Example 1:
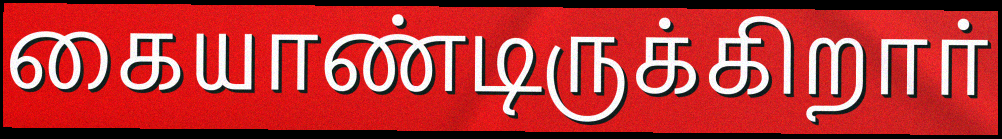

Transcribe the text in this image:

கையாண்டிருக்கிறார்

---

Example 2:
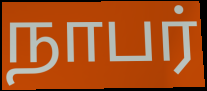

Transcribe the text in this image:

நாபர்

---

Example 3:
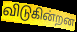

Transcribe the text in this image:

விடுகின்றன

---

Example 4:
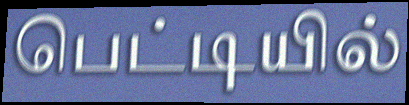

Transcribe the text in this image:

பெட்டியில்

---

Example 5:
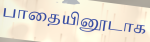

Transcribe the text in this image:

பாதையினூடாக